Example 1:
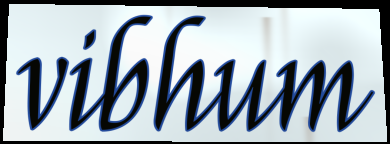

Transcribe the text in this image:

vibhum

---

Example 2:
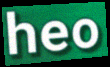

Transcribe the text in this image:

heo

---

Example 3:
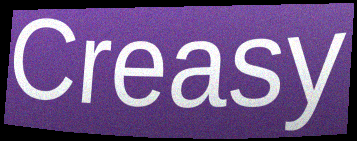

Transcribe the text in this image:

Creasy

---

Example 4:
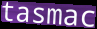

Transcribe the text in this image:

tasmac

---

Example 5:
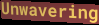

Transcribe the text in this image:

Unwavering